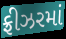
ફ્રીઝરમાં